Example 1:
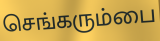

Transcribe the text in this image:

செங்கரும்பை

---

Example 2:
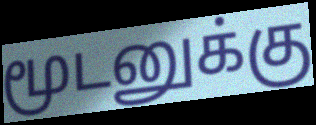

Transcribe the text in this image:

மூடனுக்கு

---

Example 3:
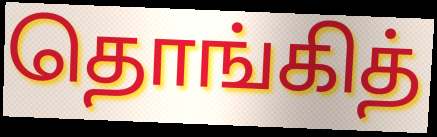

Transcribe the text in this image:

தொங்கித்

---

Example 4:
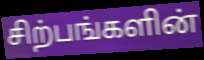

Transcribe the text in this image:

சிற்பங்களின்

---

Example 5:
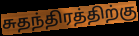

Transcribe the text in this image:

சுதந்திரத்திற்கு